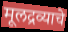
मूलद्रव्याचे